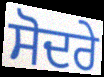
ਸੋਦਰੇ